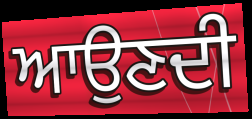
ਆਉਣਦੀ